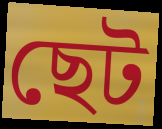
ছেট